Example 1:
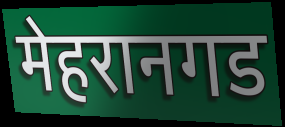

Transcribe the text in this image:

मेहरानगड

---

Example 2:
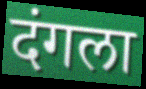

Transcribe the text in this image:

दंगला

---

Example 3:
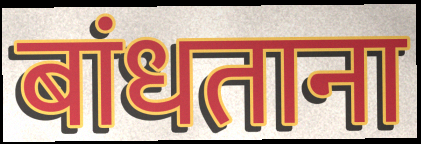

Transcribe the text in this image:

बांधताना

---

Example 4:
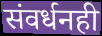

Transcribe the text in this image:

संवर्धनही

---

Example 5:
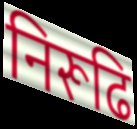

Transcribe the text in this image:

निरूढि